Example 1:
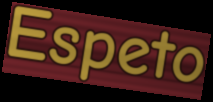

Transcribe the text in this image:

Espeto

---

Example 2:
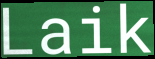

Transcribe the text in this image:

Laik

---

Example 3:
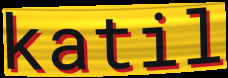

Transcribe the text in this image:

katil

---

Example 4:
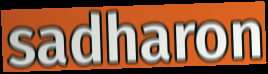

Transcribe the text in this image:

sadharon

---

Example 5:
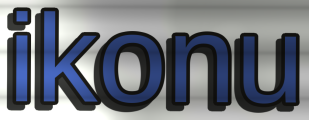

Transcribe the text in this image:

ikonu